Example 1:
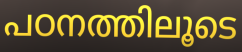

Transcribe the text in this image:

പഠനത്തിലൂടെ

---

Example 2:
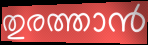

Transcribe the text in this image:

തുരത്താൻ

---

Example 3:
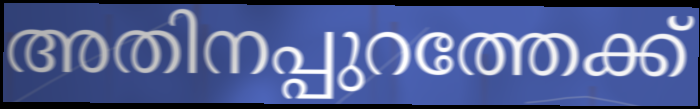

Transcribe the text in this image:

അതിനപ്പുറത്തേക്ക്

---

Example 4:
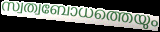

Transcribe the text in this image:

സ്വത്വബോധത്തെയും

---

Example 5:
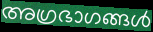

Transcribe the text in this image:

അഗ്രഭാഗങ്ങൾ